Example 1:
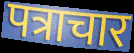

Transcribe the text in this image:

पत्राचार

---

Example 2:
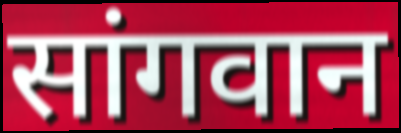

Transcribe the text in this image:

सांगवान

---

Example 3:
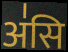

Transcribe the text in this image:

अ॑सि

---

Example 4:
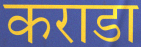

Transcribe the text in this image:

कराडा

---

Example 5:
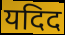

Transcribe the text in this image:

यदिद